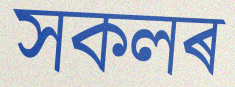
সকলৰ